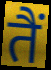
तैं